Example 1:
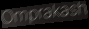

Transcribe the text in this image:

Omprakash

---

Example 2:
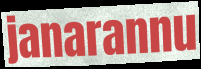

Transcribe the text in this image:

janarannu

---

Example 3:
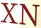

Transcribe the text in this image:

XN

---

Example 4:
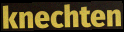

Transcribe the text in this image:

knechten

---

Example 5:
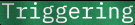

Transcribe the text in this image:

Triggering